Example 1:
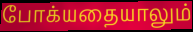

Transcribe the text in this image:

போக்யதையாலும்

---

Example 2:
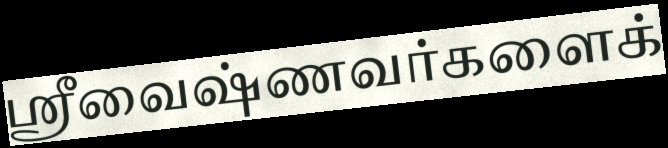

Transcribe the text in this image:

ஸ்ரீவைஷ்ணவர்களைக்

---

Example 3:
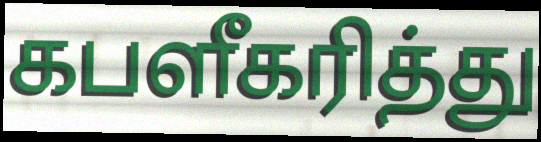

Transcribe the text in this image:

கபளீகரித்து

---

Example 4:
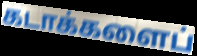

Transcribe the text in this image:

கடாக்களைப்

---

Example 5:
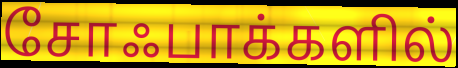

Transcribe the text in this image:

சோஃபாக்களில்